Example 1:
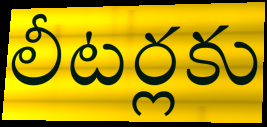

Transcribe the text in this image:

లీటర్లకు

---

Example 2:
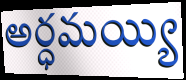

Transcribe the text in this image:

అర్ధమయ్యి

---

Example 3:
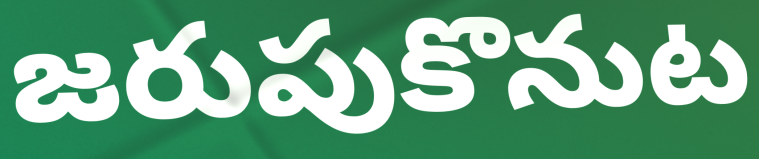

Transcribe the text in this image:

జరుపుకొనుట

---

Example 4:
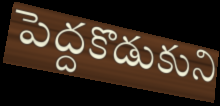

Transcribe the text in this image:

పెద్దకొడుకుని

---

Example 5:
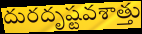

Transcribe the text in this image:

దురదృష్టవశాత్తు